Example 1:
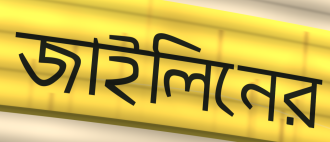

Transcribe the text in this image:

জাইলিনের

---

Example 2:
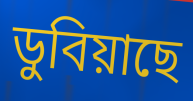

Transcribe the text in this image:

ডুবিয়াছে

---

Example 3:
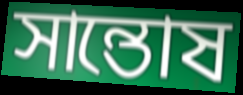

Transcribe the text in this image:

সান্তোষ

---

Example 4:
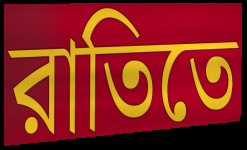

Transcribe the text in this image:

রাতিতে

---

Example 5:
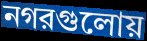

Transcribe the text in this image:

নগরগুলোয়